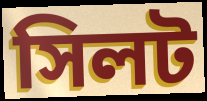
সিলট